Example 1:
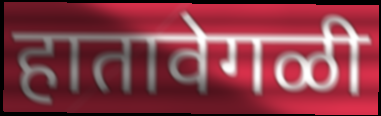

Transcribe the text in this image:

हातावेगळी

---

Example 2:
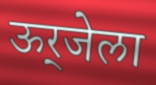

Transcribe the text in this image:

ऊर्जेला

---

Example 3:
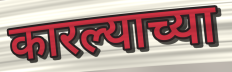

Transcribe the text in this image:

कारल्याच्या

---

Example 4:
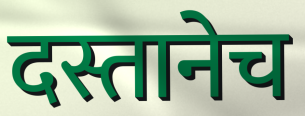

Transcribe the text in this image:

दस्तानेच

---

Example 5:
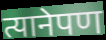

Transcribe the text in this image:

त्यानेपण